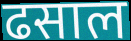
ढसाल